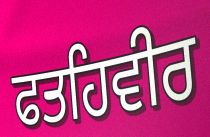
ਫਤਹਿਵੀਰ